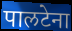
पालटेना